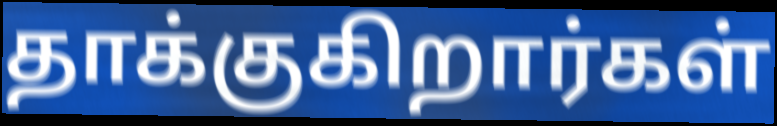
தாக்குகிறார்கள்